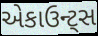
એકાઉન્ટ્સ